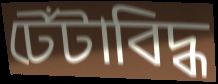
টেঁটাবিদ্ধ